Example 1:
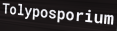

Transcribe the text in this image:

Tolyposporium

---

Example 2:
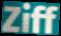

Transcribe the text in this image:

Ziff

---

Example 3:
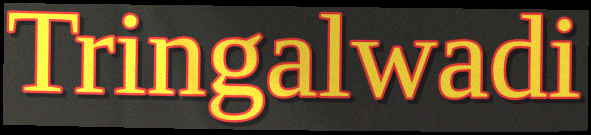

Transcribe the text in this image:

Tringalwadi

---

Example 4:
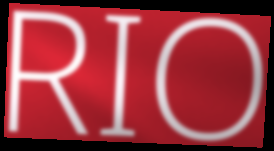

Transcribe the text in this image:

RIO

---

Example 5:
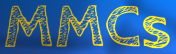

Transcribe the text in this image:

MMCs